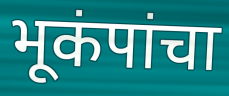
भूकंपांचा